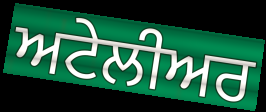
ਅਟੇਲੀਅਰ